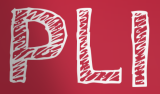
PLI